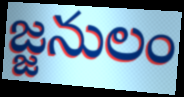
జ్జనులం